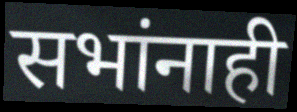
सभांनाही